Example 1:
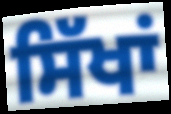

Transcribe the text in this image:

ਸਿੱਖਾਂ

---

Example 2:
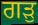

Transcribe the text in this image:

ਗੜੁ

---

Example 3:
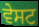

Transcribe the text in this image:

ਵੇਸਟ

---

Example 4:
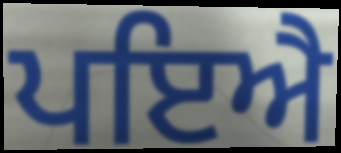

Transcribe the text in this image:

ਪਇਐ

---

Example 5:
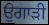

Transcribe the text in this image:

ਉਗਾੜੀ